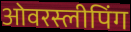
ओवरस्लीपिंग